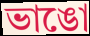
ভাঙো